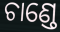
ଚାଣ୍ଡେ